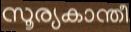
സൂര്യകാന്തീ